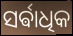
ସର୍ଵାଧିକ